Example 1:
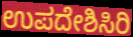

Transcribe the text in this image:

ಉಪದೇಶಿಸಿರಿ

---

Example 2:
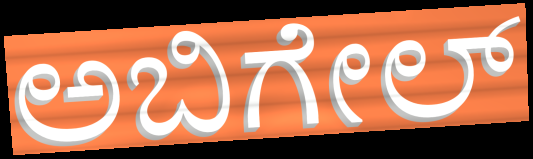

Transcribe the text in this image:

ಅಬಿಗೇಲ್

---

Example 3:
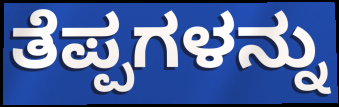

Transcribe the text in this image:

ತೆಪ್ಪಗಳನ್ನು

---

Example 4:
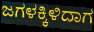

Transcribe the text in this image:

ಜಗಳಕ್ಕಿಳಿದಾಗ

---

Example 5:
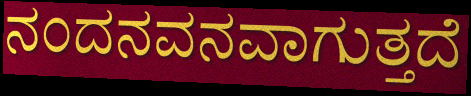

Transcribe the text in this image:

ನಂದನವನವಾಗುತ್ತದೆ